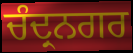
ਚੰਦ੍ਰਨਗਰ